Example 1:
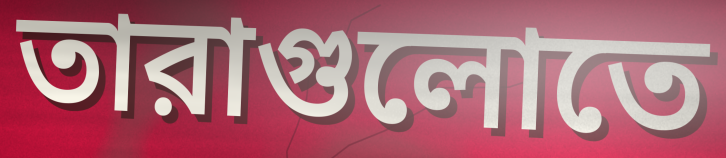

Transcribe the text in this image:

তারাগুলোতে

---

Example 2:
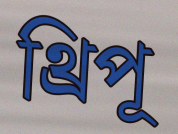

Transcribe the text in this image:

থ্রিপূ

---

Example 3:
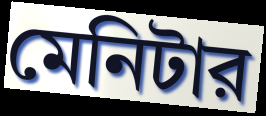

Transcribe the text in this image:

মেনিটার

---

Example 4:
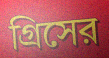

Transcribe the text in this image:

গ্রিসের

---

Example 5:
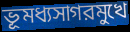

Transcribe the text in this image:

ভূমধ্যসাগরমুখে